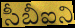
సీబీఐని